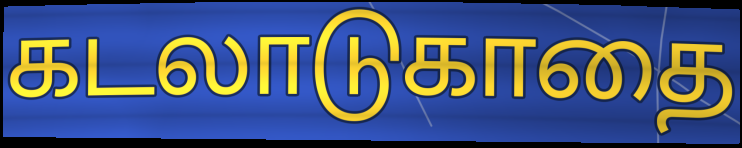
கடலாடுகாதை